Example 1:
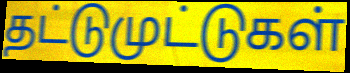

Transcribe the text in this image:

தட்டுமுட்டுகள்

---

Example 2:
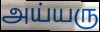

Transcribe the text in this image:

அய்யரு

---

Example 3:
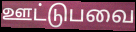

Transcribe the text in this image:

ஊட்டுபவை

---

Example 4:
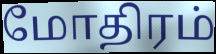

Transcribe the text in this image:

மோதிரம்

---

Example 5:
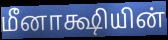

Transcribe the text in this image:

மீனாக்ஷியின்